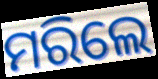
ମରିଲେ